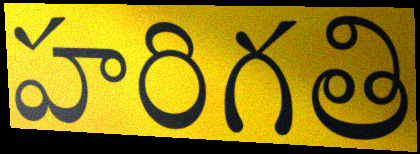
హరిగతి